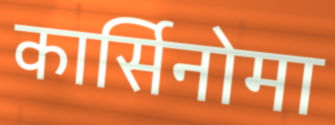
कार्सिनोमा